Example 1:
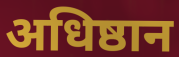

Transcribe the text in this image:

अधिष्ठान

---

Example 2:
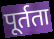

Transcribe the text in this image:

पूर्तता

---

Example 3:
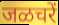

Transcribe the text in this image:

जळचरें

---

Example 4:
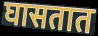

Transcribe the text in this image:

घासतात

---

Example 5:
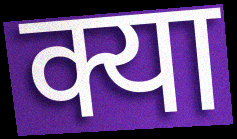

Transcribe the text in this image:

क्या